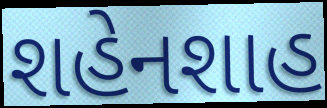
શહેનશાહ